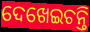
ଦେଖେଇଚନ୍ତି